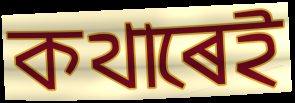
কথাৰেই